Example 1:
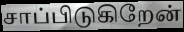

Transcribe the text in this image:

சாப்பிடுகிறேன்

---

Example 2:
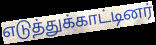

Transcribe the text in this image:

எடுத்துக்காட்டினர்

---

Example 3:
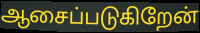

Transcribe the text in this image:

ஆசைப்படுகிறேன்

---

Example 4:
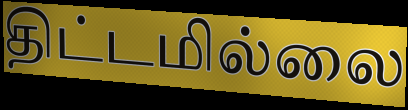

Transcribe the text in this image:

திட்டமில்லை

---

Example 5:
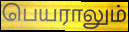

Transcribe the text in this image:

பெயராலும்